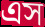
এস